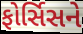
ફોર્સિસને